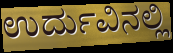
ಉರ್ದುವಿನಲ್ಲಿ